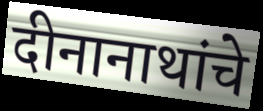
दीनानाथांचे